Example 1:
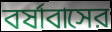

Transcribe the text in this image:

বর্ষাবাসের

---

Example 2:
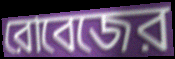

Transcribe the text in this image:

রোবেজের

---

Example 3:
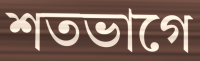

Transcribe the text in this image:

শতভাগে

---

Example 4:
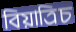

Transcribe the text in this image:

বিয়াত্রিচ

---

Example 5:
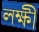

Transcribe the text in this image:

লক্ষী